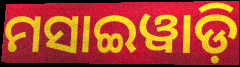
ମସାଇୱାଡ଼ି